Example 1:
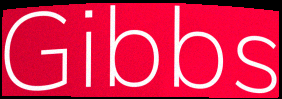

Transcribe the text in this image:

Gibbs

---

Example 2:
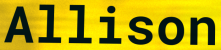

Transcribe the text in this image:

Allison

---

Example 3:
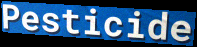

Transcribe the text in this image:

Pesticide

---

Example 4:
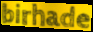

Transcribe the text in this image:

birhade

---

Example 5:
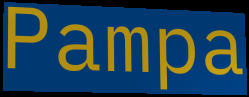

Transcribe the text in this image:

Pampa